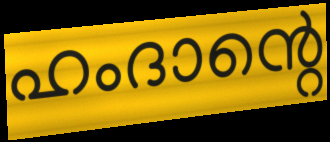
ഹംദാന്റെ